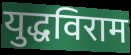
युद्धविराम